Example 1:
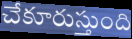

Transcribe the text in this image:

చేకూరుస్తుంది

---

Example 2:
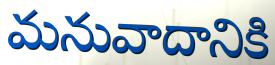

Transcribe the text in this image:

మనువాదానికి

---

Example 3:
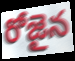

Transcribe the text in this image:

రోజైన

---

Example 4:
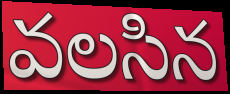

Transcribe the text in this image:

వలసిన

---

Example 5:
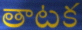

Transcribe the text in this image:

తాటక